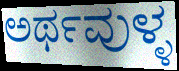
ಅರ್ಥವುಳ್ಳ